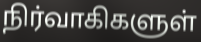
நிர்வாகிகளுள்